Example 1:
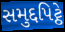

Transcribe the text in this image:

સમુદ્દપિટ્ઠે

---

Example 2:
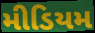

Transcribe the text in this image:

મીડિયમ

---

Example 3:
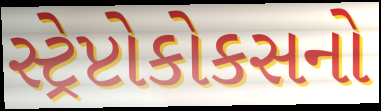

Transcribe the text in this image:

સ્ટ્રેપ્ટોકોકસનો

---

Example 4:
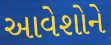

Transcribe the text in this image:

આવેશોને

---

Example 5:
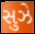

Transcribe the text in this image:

સુઝે